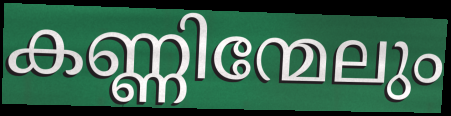
കണ്ണിന്മേലും